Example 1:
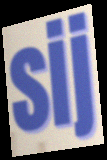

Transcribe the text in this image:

sij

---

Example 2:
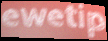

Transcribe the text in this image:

ewetip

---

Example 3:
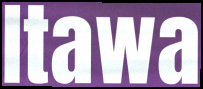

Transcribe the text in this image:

Itawa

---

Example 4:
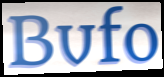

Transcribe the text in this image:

Bufo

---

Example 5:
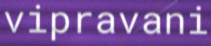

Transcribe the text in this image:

vipravani